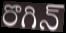
రొగిన్